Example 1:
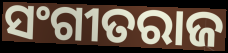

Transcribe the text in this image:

ସଂଗୀତରାଜ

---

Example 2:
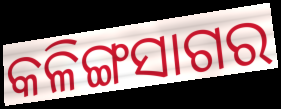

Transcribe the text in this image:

କଳିଙ୍ଗସାଗର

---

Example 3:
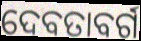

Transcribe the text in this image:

ଦେବତାବର୍ଗ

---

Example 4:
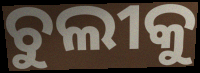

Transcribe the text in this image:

ଚୁଲୀକୁ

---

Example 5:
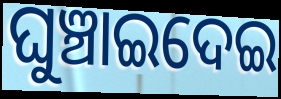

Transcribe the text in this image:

ଘୁଞ୍ଚାଇଦେଇ